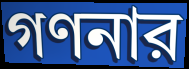
গণনার